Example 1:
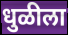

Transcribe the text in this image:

धुळीला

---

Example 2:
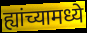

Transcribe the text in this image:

ह्यांच्यामध्ये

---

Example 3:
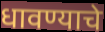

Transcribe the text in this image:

धावण्याचे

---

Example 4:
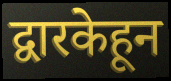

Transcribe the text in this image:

द्वारकेहून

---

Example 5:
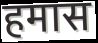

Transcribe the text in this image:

हमास